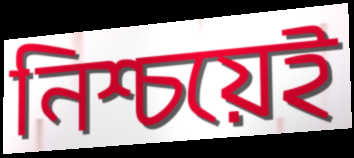
নিশ্চয়েই